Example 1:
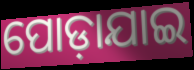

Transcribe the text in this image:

ପୋଡ଼ାଯାଇ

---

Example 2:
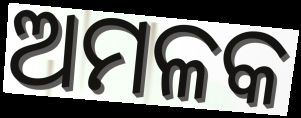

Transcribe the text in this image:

ଅମଳକ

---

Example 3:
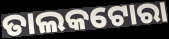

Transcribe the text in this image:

ତାଲକଟୋରା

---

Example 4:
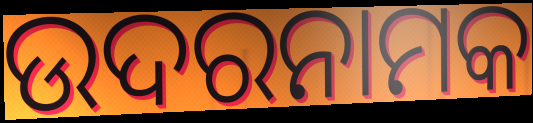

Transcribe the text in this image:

ଉଦରନାମକ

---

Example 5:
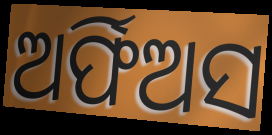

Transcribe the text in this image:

ଅର୍ଫିଅସ